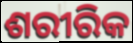
ଶରୀରିକ